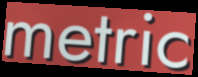
metric